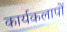
कार्यकलापों